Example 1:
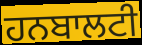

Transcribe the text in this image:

ਹਨਬਾਲਟੀ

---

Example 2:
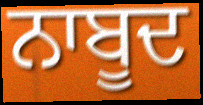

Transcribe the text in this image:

ਨਾਬੂਦ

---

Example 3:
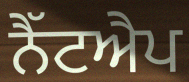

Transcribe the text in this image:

ਨੈੱਟਐਪ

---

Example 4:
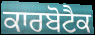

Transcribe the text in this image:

ਕਾਰਬੋਟੈਕ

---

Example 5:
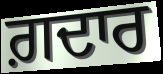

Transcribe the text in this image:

ਗ਼ਦਾਰ